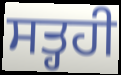
ਸਤ੍ਹਹੀ